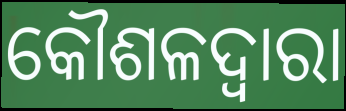
କୌଶଳଦ୍ୱାରା